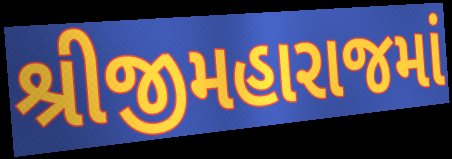
શ્રીજીમહારાજમાં